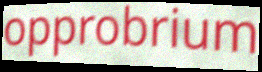
opprobrium